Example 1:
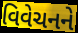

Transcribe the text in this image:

વિવેચનને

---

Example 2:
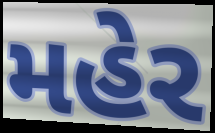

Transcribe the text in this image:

મહેર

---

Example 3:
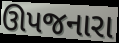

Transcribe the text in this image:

ઊપજનારા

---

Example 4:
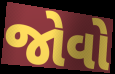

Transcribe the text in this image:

જોવો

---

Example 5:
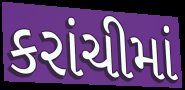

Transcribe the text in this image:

કરાંચીમાં